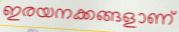
ഇരയനക്കങ്ങളാണ്